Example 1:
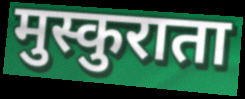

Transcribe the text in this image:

मुस्कुराता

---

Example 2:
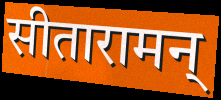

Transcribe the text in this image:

सीतारामन्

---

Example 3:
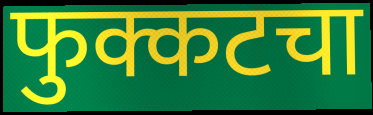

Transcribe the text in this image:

फुक्कटचा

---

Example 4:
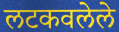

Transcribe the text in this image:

लटकवलेले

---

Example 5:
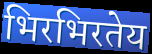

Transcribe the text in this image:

भिरभिरतेय